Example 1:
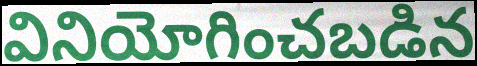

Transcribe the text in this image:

వినియోగించబడిన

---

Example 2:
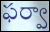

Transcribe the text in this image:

ఫర్వా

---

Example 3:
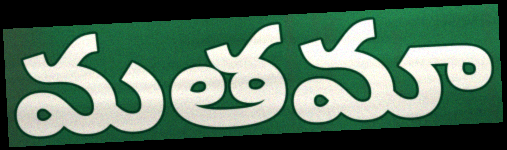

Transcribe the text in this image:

మతమా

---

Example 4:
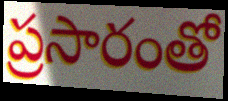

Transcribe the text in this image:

ప్రసారంతో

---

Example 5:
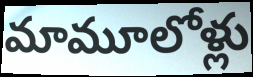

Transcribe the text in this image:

మామూలోళ్లు